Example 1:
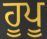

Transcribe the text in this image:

ਹੂਪੂ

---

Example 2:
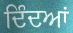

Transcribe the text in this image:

ਦਿੰਦਆਂ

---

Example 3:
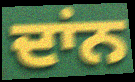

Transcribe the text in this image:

ਦਾਂਨ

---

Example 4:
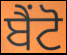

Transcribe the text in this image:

ਬੈਂਟੋ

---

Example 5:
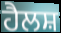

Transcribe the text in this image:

ਹੈਲਸ਼